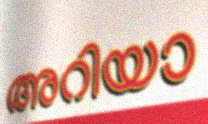
അറിയാ